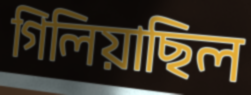
গিলিয়াছিল